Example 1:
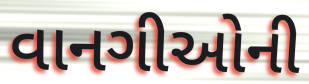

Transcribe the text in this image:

વાનગીઓની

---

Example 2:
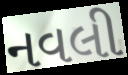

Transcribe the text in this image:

નવલી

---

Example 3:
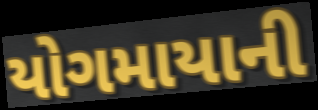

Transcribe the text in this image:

યોગમાયાની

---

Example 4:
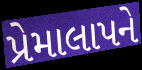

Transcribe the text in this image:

પ્રેમાલાપને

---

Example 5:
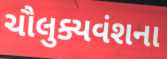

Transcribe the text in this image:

ચૌલુક્યવંશના